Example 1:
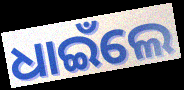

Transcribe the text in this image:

ଧାଇଁଲେ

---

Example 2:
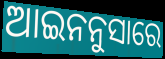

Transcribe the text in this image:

ଆଇନନୁସାରେ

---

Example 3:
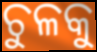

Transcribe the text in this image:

ଚୁଳକୁ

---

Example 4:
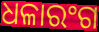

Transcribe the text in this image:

ଧଳାରଂଗ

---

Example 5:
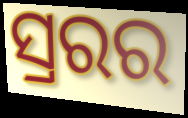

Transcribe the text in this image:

ସ୍ରରର